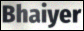
Bhaiyer